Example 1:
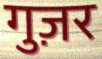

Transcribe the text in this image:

गुज़र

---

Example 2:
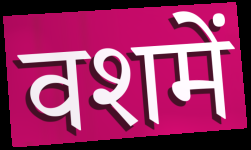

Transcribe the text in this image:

वशमें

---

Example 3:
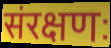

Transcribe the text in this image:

संरक्षणः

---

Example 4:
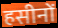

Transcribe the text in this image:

हसीनों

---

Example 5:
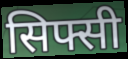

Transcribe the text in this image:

सिफ्सी